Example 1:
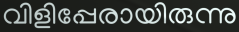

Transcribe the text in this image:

വിളിപ്പേരായിരുന്നു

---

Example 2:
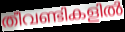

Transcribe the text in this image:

തീവണ്ടികളിൽ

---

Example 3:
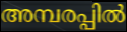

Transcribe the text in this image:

അമ്പരപ്പിൽ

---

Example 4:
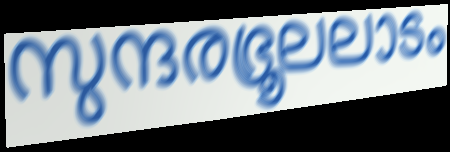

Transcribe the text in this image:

സുന്ദരഭ്രൂലലാടം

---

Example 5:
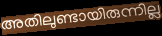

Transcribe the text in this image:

അതിലുണ്ടായിരുന്നില്ല